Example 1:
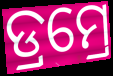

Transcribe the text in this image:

ଡ୍ରମ୍ରେ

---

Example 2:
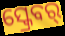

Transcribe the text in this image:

ସ୍କ୍ରେବର୍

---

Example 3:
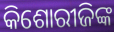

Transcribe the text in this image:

କିଶୋରୀଜିଙ୍କ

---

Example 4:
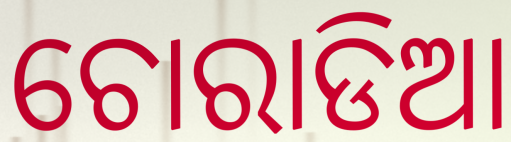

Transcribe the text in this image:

ଚୋରାଡିଆ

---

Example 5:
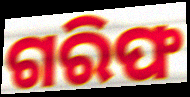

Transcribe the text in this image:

ଗରିଫ